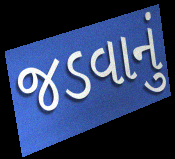
જડવાનું